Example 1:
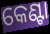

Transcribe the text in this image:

କେଣ୍ଟା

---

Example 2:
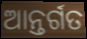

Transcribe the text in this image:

ଆନ୍ତର୍ଗତ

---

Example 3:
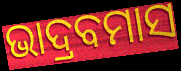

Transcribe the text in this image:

ଭାଦ୍ରବମାସ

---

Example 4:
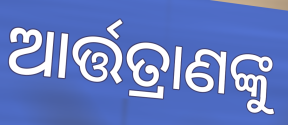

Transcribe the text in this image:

ଆର୍ତ୍ତତ୍ରାଣଙ୍କୁ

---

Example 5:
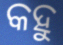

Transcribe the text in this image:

କହୁ